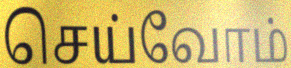
செய்வோம்